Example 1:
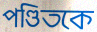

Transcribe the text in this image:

পণ্ডিতকে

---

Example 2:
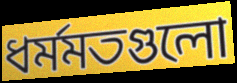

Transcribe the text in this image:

ধর্মমতগুলো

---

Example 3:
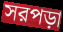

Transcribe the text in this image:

সরপড়া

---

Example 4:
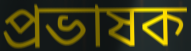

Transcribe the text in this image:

প্রভাষক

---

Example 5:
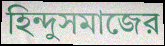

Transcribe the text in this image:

হিন্দুসমাজের